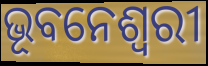
ଭୂବନେଶ୍ୱରୀ